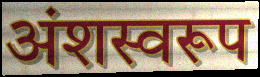
अंशस्वरूप